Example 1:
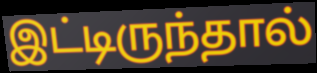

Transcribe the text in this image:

இட்டிருந்தால்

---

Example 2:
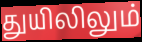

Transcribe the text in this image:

துயிலிலும்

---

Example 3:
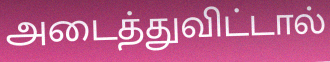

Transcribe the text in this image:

அடைத்துவிட்டால்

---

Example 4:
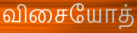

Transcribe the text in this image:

விசையோத்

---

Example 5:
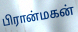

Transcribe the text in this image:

பிரான்மகன்